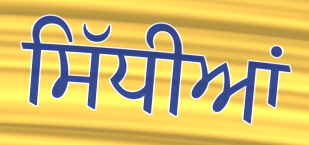
ਸਿੱਧੀਆਂ